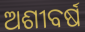
ଅଶୀବର୍ଷ